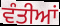
ਵੰਤੀਆਂ